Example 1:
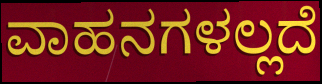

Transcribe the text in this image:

ವಾಹನಗಳಲ್ಲದೆ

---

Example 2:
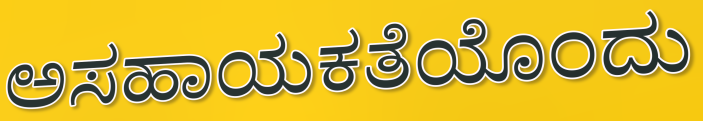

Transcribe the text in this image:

ಅಸಹಾಯಕತೆಯೊಂದು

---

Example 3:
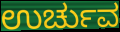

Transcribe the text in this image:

ಉರ್ಚುವ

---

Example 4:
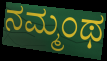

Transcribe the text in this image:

ನಮ್ಮಂಥ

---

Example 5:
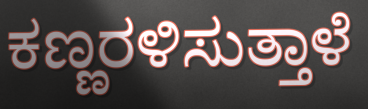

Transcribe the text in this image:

ಕಣ್ಣರಳಿಸುತ್ತಾಳೆ